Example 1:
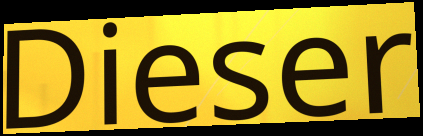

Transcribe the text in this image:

Dieser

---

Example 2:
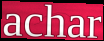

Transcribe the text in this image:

achar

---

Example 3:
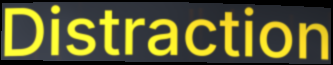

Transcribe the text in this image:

Distraction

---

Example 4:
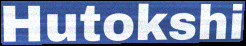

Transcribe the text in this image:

Hutokshi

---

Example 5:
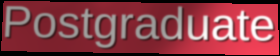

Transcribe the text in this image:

Postgraduate